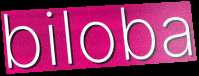
biloba